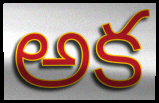
అక